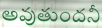
అవుతుందనీ